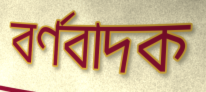
বৰ্ণবাদক